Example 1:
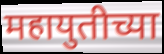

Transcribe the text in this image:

महायुतीच्या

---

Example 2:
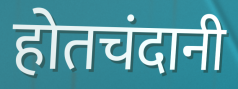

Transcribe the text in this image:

होतचंदानी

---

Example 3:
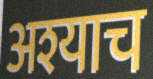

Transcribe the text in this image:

अश्याच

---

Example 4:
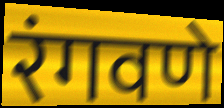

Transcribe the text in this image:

रंगवणे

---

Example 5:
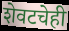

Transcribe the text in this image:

शेवटचेही